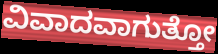
ವಿವಾದವಾಗುತ್ತೋ